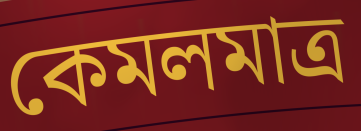
কেমলমাত্র